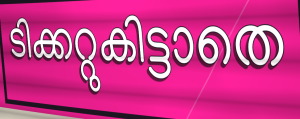
ടിക്കറ്റുകിട്ടാതെ